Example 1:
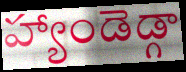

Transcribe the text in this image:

హ్యాండెడ్గా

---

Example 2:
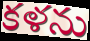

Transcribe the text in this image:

కళను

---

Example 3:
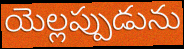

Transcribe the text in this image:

యెల్లప్పుడును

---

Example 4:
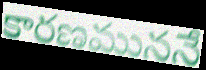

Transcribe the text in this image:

కారణముననే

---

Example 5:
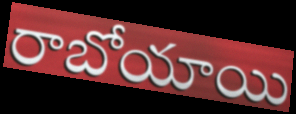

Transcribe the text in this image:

రాబోయాయి